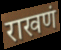
राखणं